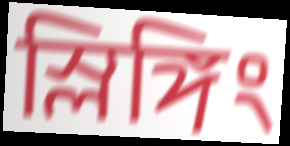
স্লিঙ্গিং